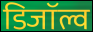
डिजॉल्व